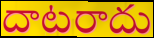
దాటరాదు